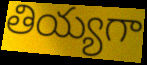
తియ్యగా